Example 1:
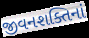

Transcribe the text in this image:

જીવનશક્તિનાં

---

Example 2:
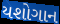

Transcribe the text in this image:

યશોગાન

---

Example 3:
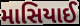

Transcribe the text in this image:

માસિયાઈ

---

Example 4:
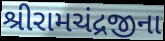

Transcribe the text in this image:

શ્રીરામચંદ્રજીના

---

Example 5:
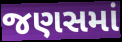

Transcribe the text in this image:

જણસમાં